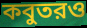
কবুতরও